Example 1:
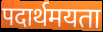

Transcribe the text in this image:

पदार्थमयता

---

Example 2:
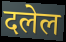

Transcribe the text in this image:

दलेल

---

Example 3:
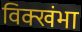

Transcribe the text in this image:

विक्खंभा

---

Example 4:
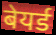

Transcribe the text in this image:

बेयर्ड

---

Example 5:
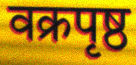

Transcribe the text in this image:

वक्रपृष्ठ